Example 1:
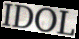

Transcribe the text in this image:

IDOL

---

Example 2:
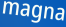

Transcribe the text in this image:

magna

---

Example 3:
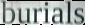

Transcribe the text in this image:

burials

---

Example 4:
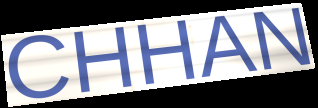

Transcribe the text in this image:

CHHAN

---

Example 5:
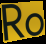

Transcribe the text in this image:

Ro